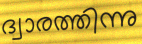
ദ്വാരത്തിന്നു